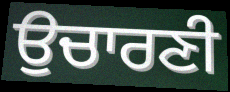
ਉਚਾਰਣੀ